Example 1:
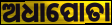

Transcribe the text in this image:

ଅଧାପୋତା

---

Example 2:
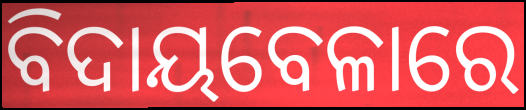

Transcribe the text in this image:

ବିଦାୟବେଳାରେ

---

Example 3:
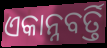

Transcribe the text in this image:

ଏକାନ୍ନବର୍ତ୍ତି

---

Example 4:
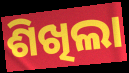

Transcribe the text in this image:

ଶିଖିଲା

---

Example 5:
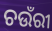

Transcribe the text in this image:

ଚଉଁରୀ